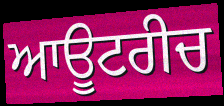
ਆਊਟਰੀਚ